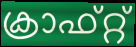
ക്രാഫ്റ്റ്